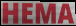
HEMA